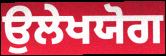
ਉਲੇਖਯੋਗ